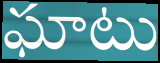
ఘాటు